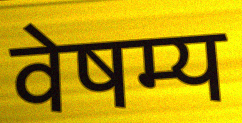
वेषम्य